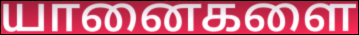
யானைகளை